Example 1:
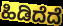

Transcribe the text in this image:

ಹಿಡಿದೆದೆ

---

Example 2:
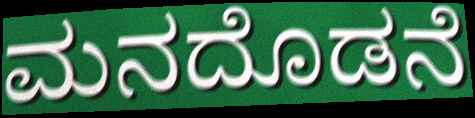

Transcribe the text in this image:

ಮನದೊಡನೆ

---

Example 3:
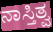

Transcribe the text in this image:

ನಾಸ್ತಿತ್ವ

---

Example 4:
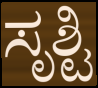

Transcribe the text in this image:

ಸೃಶ್ಟಿ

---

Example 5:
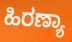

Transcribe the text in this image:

ಹಿರಣ್ಯಾ